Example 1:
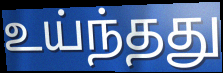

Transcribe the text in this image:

உய்ந்தது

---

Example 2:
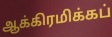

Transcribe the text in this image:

ஆக்கிரமிக்கப்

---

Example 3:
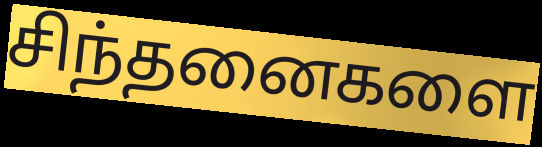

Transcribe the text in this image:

சிந்தனைகளை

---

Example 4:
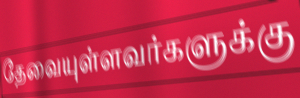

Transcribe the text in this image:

தேவையுள்ளவர்களுக்கு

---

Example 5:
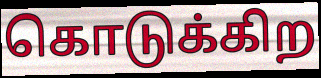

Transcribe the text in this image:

கொடுக்கிற